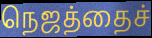
நெஜத்தைச்